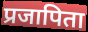
प्रजापिता